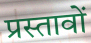
प्रस्‍तावों